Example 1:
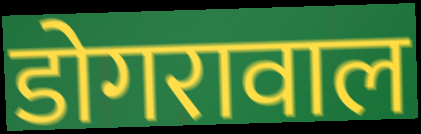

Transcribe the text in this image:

डोगरावाल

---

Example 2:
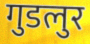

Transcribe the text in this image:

गुडलुर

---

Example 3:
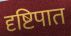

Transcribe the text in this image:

दृष्टिपात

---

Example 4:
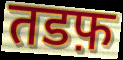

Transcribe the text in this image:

तडफ़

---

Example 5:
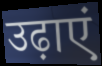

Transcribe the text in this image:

उढ़ाएं